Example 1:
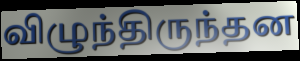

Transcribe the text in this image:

விழுந்திருந்தன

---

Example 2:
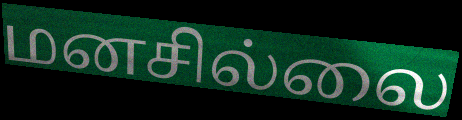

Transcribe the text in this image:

மனசில்லை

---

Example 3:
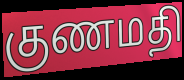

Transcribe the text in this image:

குணமதி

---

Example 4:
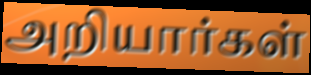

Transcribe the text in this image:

அறியார்கள்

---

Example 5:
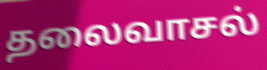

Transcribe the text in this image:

தலைவாசல்